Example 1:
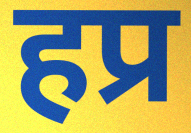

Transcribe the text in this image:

हप्र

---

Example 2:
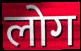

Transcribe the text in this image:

लोग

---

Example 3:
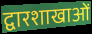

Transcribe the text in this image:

द्वारशाखाओं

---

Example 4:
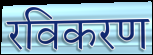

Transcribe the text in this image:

रविकरण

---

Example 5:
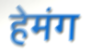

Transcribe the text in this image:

हेमंग